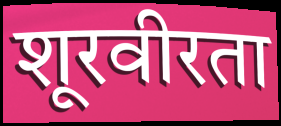
शूरवीरता